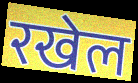
रखेल